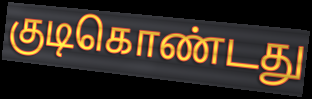
குடிகொண்டது